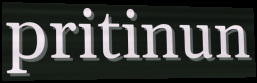
pritinun